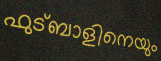
ഫുട്ബാളിനെയും